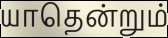
யாதென்றும்